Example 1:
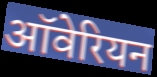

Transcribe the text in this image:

ऑवेरियन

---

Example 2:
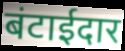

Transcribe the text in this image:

बंटाईदार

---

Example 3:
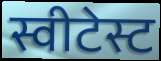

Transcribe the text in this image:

स्वीटेस्ट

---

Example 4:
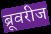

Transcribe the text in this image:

ब्रूवरीज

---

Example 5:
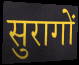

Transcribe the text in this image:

सुरागों